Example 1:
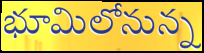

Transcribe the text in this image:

భూమిలోనున్న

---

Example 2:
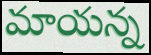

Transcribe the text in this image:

మాయన్న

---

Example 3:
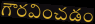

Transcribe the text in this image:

గౌరవించడం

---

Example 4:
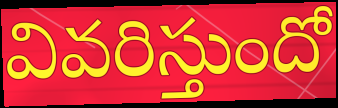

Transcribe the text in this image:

వివరిస్తుందో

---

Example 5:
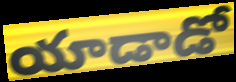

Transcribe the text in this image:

యాడాడో